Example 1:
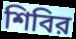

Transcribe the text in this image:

শিবির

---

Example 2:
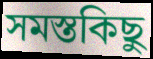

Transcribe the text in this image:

সমস্তকিছু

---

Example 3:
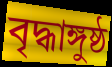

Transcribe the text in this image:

বৃদ্ধাঙ্গুষ্ঠ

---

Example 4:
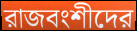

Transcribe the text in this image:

রাজবংশীদের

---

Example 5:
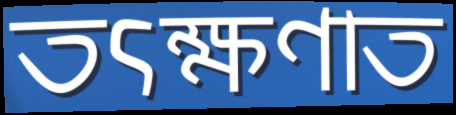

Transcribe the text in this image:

তৎক্ষণাত